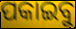
ପକାଇବୁ